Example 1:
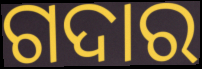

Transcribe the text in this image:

ଗଦାର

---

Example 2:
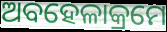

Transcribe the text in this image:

ଅବହେଳାକ୍ରମେ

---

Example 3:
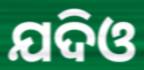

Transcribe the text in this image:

ଯଦିଓ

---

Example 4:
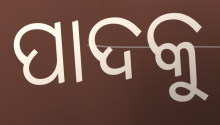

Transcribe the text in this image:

ପାଦକୁ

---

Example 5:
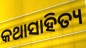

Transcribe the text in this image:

କଥାସାହିତ୍ୟ